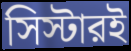
সিস্টারই